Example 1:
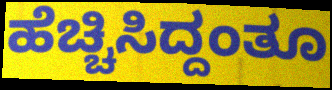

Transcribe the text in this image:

ಹೆಚ್ಚಿಸಿದ್ದಂತೂ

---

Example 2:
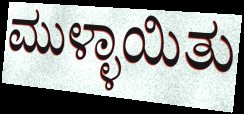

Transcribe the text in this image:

ಮುಳ್ಳಾಯಿತು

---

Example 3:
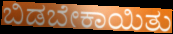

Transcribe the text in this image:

ಬಿಡಬೇಕಾಯಿತು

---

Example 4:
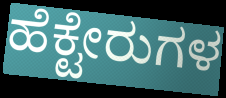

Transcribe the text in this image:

ಹೆಕ್ಟೇರುಗಳ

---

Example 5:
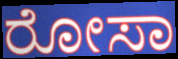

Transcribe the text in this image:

ರೋಸಾ